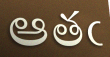
ఆతఁ